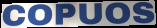
COPUOS